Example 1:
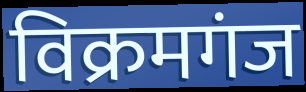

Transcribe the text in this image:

विक्रमगंज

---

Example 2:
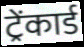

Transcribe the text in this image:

ट्रेंकार्ड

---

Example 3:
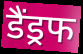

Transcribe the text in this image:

डैंड्रफ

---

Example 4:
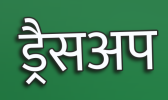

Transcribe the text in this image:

ड्रैसअप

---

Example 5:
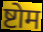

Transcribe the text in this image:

ष्टोम